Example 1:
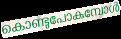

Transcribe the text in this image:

കൊണ്ടുപോകുമ്പോൾ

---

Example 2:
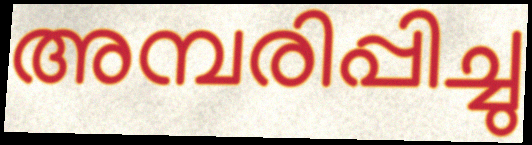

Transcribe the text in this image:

അമ്പരിപ്പിച്ചു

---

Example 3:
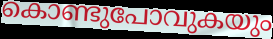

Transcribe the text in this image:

കൊണ്ടുപോവുകയും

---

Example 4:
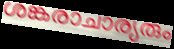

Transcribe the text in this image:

ശങ്കരാചാര്യരും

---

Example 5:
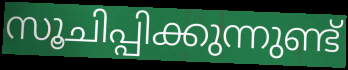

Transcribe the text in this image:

സൂചിപ്പിക്കുന്നുണ്ട്